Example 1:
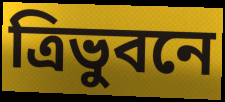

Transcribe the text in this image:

ত্রিভুবনে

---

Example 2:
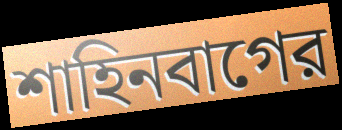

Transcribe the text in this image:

শাহিনবাগের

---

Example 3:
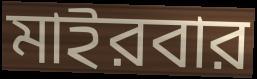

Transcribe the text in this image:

মাইরবার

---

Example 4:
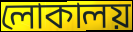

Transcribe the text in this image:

লোকালয়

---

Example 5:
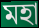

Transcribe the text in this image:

মহা